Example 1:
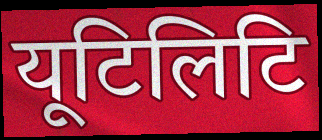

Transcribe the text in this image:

यूटिलिटि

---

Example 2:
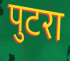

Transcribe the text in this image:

पुटरा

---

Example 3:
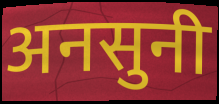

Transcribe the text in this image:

अनसुनी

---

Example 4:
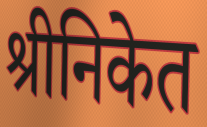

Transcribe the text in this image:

श्रीनिकेत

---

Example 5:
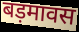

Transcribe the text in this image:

बड़मावस